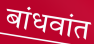
बांधवांत